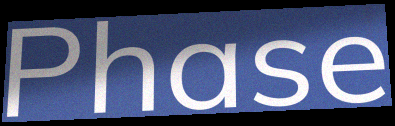
Phase